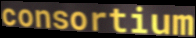
consortium